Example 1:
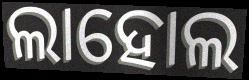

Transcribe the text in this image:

ଲାହୋଲ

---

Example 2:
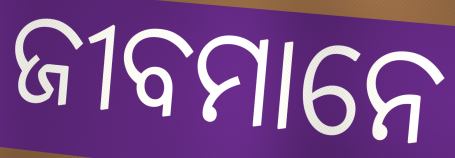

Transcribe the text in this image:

ଜୀବମାନେ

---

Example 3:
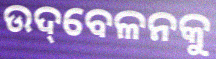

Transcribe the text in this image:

ଉଦ୍‌ବେଳନକୁ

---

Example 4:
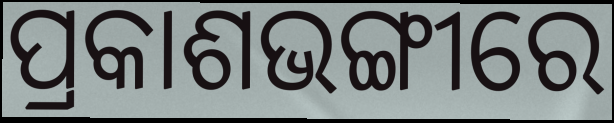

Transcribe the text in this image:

ପ୍ରକାଶଭଙ୍ଗୀରେ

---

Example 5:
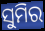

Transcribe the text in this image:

ସୁମିର